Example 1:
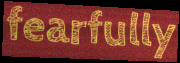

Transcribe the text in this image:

fearfully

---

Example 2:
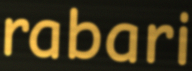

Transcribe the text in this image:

rabari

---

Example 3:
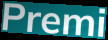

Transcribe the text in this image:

Premi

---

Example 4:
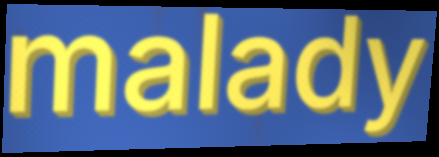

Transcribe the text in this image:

malady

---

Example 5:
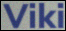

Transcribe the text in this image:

Viki